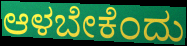
ಆಳಬೇಕೆಂದು